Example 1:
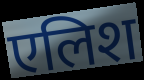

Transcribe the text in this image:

एलिश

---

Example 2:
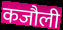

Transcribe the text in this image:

कजौली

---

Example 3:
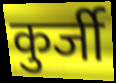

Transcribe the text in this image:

कुर्जी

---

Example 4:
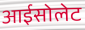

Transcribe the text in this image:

आईसोलेट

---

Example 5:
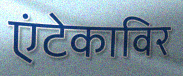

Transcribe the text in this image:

एंटेकाविर